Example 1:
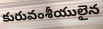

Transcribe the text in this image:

కురువంశీయులైన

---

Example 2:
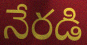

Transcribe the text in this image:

నేరడి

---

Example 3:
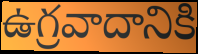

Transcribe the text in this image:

ఉగ్రవాదానికి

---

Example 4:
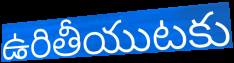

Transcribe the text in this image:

ఉరితీయుటకు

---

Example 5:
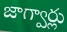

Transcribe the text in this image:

జాగ్వార్లు